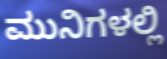
ಮುನಿಗಳಲ್ಲಿ